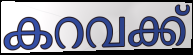
കറവക്ക്